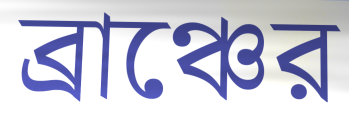
ব্রাঞ্চের